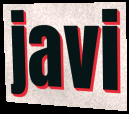
javi